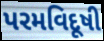
પરમવિદૂષી